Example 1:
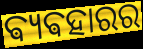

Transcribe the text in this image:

ଵ୍ୟଵହାରର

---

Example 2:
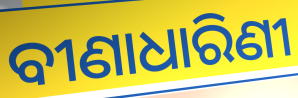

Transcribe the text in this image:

ବୀଣାଧାରିଣୀ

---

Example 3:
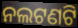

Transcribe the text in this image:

ନଲଟଣଟି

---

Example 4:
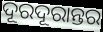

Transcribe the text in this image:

ଦୂରଦୂରାନ୍ତର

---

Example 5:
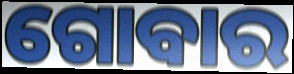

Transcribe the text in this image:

ଗୋବାର